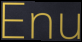
Enu